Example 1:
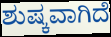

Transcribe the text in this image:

ಶುಷ್ಕವಾಗಿದೆ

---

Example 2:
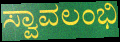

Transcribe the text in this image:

ಸ್ವಾವಲಂಭಿ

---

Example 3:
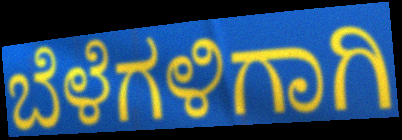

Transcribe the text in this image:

ಬೆಳೆಗಳಿಗಾಗಿ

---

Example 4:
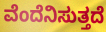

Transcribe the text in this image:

ವೆಂದೆನಿಸುತ್ತದೆ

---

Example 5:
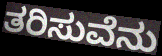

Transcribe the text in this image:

ತರಿಸುವೆನು